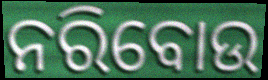
ନରିବୋଉ